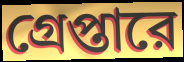
গ্রেপ্তারে